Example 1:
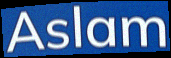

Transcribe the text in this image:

Aslam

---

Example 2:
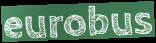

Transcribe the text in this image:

eurobus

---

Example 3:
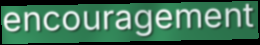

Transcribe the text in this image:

encouragement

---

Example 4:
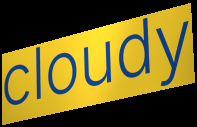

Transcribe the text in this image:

cloudy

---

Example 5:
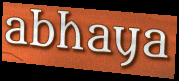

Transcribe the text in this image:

abhaya